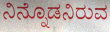
ನಿನ್ನೊಡನಿರುವ